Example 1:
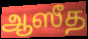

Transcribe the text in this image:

ஆஸீத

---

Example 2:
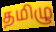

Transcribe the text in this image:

தமிழு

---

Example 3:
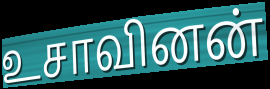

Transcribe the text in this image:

உசாவினன்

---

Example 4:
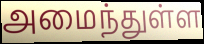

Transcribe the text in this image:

அமைந்துள்ள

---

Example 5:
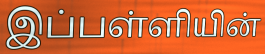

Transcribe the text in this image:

இப்பள்ளியின்